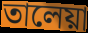
তালেয়া